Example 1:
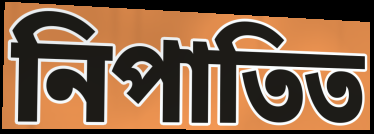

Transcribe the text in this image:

নিপাতিত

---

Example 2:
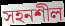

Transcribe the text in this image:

সহনশীল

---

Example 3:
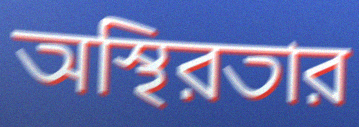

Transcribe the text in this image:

অস্থিরতার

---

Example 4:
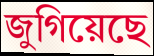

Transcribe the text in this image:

জুগিয়েছে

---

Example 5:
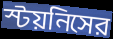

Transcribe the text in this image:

স্টয়নিসের